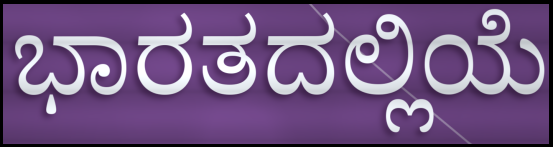
ಭಾರತದಲ್ಲಿಯೆ